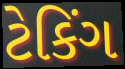
ટેકિંગ